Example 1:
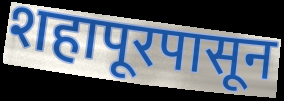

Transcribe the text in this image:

शहापूरपासून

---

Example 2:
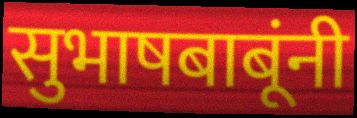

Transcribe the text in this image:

सुभाषबाबूंनी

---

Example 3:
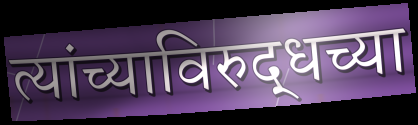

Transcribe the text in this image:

त्यांच्याविरुद्धच्या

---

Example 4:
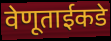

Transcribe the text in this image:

वेणूताईकडे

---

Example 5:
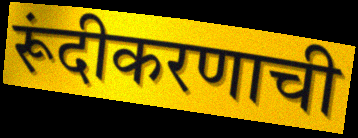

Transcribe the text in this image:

रूंदीकरणाची